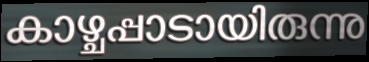
കാഴ്ചപ്പാടായിരുന്നു